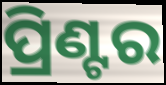
ପ୍ରିଣ୍ଟର